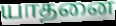
யாதனை